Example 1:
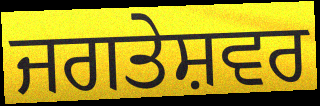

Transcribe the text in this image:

ਜਗਤੇਸ਼ਵਰ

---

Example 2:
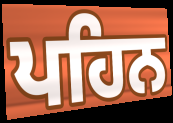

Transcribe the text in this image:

ਪਹਿਨ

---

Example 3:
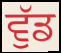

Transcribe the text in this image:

ਵੁੱਡ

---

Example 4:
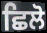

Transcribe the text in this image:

ਛਿਲੋ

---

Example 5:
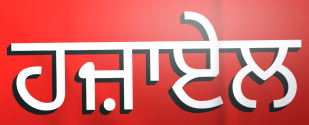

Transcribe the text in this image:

ਹਜ਼ਾਏਲ